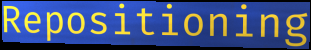
Repositioning